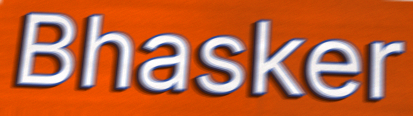
Bhasker